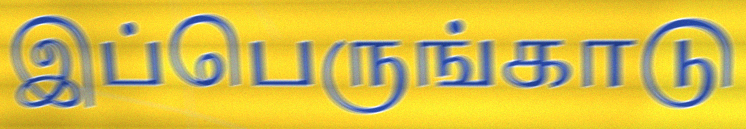
இப்பெருங்காடு